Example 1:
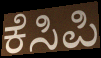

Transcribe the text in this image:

ಕೆಸಿಪಿ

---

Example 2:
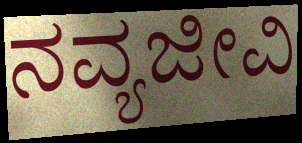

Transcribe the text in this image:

ನವ್ಯಜೀವಿ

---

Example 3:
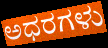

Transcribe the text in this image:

ಅಧರಗಳು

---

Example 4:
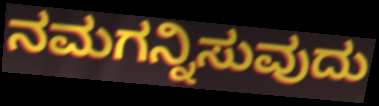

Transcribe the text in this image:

ನಮಗನ್ನಿಸುವುದು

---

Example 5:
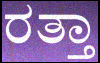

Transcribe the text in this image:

ರತ್ತಾ